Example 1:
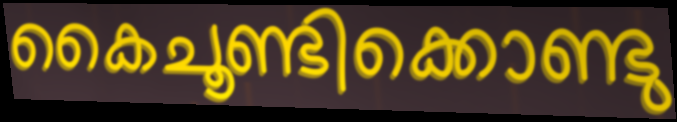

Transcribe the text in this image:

കൈചൂണ്ടിക്കൊണ്ടു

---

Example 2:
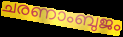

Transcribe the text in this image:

ചരണാംബുജം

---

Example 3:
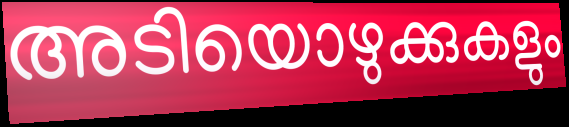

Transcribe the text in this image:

അടിയൊഴുക്കുകളും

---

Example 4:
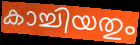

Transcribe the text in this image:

കാച്ചിയതും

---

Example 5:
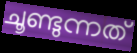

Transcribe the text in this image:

ചൂണ്ടുന്നത്